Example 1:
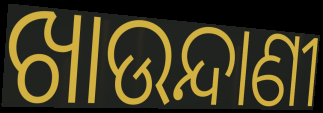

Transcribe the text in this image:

ଖାଉନ୍ଦାଣୀ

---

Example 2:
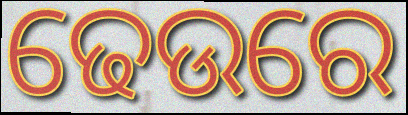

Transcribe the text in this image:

ଢେଉରେ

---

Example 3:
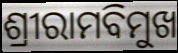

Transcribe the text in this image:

ଶ୍ରୀରାମବିମୁଖ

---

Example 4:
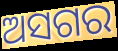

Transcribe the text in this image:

ଅସଗର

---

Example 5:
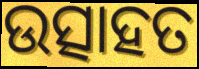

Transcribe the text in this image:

ଉତ୍ସାହତ